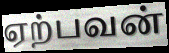
ஏற்பவன்